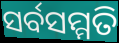
ସର୍ବସମ୍ମତି